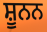
ਸ਼ੂਨਨ